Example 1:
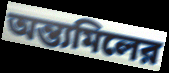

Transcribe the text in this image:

অন্ত্যমিলের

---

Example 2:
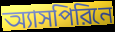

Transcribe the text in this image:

অ্যাসপিরিনে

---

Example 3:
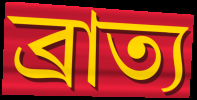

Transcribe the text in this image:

ব্রাত্য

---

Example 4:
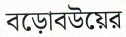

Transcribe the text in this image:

বড়োবউয়ের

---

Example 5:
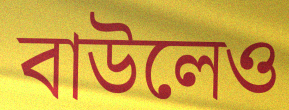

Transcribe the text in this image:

বাউলেও